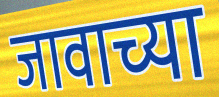
जावाच्या